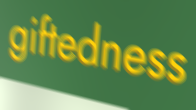
giftedness